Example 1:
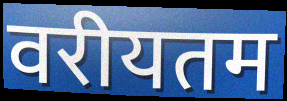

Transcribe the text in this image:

वरीयतम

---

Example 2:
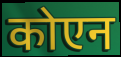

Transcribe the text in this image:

कोएन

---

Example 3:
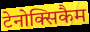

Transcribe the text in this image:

टेनोक्सिकैम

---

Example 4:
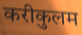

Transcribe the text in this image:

करीकुलम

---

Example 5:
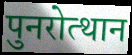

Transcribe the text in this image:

पुनरोत्थान